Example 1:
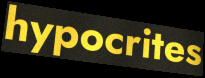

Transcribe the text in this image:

hypocrites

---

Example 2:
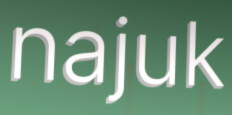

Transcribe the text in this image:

najuk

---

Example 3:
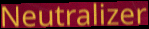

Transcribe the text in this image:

Neutralizer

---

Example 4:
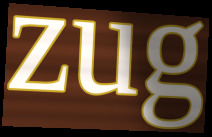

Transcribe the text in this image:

zug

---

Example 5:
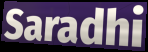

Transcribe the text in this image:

Saradhi